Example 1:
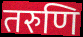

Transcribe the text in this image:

तरुणि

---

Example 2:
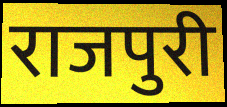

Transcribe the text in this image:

राजपुरी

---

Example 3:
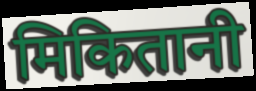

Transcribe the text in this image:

मिकितानी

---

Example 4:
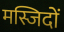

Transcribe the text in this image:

मस्जिदों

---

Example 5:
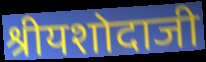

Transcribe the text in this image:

श्रीयशोदाजी